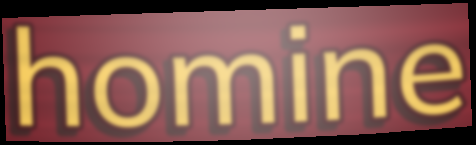
homine